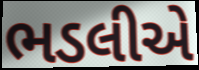
ભડલીએ